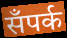
सँपर्क